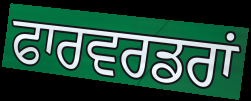
ਫਾਰਵਰਡਰਾਂ